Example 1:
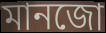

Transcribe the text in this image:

মানজো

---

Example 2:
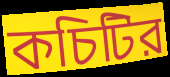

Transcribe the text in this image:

কচিটির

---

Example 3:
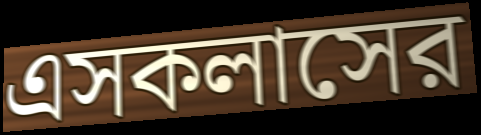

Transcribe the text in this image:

এসকলাসের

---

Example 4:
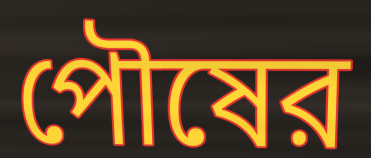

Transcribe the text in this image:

পৌষের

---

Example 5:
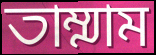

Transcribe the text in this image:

তাম্মাম